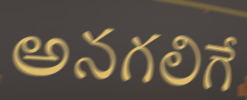
అనగలిగే